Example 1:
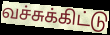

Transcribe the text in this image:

வச்சுக்கிட்டு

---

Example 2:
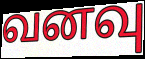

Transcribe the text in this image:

வனவு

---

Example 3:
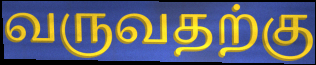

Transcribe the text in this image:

வருவதற்கு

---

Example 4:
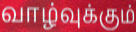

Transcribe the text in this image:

வாழ்வுக்கும்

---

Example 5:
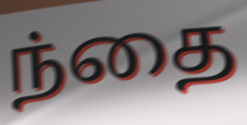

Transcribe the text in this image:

ந்தை